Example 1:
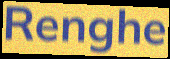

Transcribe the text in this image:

Renghe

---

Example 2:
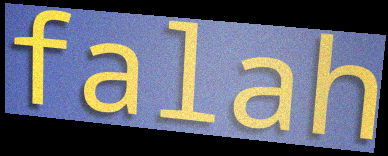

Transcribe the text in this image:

falah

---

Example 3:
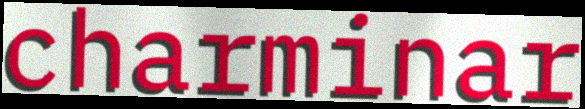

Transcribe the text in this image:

charminar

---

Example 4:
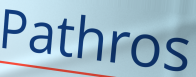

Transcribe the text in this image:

Pathros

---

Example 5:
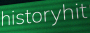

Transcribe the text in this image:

historyhit